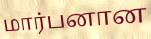
மார்பனான